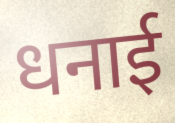
धनाई